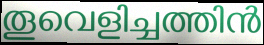
തൂവെളിച്ചത്തിൻ